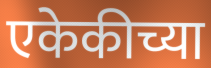
एकेकीच्या